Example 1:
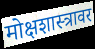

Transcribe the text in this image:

मोक्षशास्त्रावर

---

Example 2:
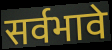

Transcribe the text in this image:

सर्वभावे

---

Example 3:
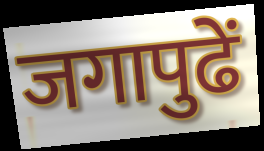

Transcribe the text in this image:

जगापुढें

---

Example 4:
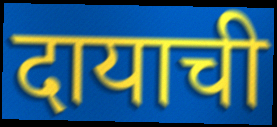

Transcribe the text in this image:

दायाची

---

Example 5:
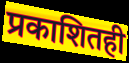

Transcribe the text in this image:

प्रकाशितही